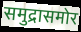
समुद्रासमोर